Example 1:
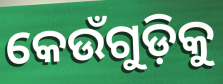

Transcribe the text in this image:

କେଉଁଗୁଡ଼ିକୁ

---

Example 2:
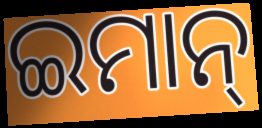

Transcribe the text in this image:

ଇମାନ୍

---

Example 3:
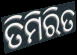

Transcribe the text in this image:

ତିମିରିତ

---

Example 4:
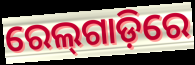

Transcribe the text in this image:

ରେଲ୍‌ଗାଡ଼ିରେ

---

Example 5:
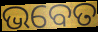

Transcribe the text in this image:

ଭବେତ